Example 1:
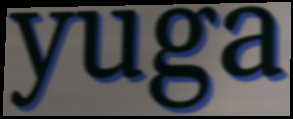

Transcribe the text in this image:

yuga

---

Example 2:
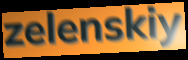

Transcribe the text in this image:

zelenskiy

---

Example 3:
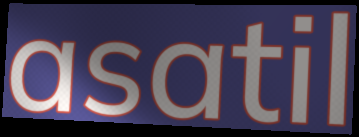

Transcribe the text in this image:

asatil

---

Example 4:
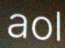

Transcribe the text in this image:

aol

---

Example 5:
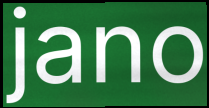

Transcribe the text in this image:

jano